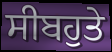
ਸੀਬਹੁਤੇ